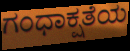
ಗಂಧಾಕ್ಷತೆಯ